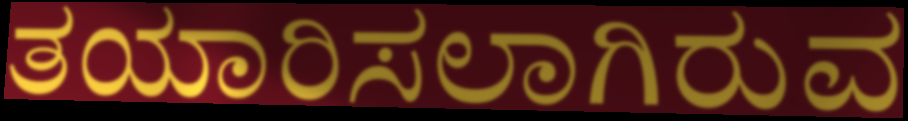
ತಯಾರಿಸಲಾಗಿರುವ